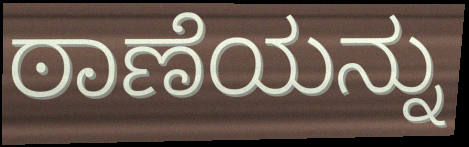
ಠಾಣೆಯನ್ನು